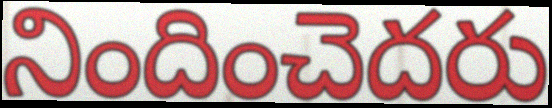
నిందించెదరు